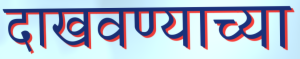
दाखवण्याच्या